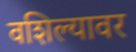
वशिल्यावर